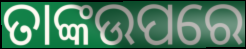
ତାଙ୍କଉପରେ